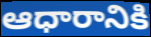
ఆధారానికి